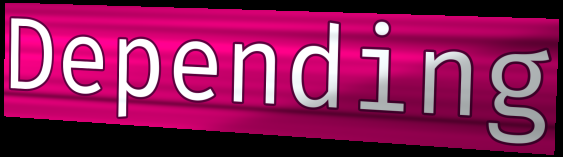
Depending